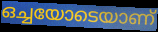
ഒച്ചയോടെയാണ്